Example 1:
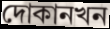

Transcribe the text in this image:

দোকানখন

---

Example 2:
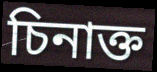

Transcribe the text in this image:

চিনাক্ত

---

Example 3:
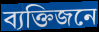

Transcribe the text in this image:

ব্যক্তিজনে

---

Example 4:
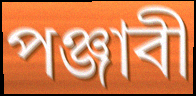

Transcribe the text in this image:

পঞ্জাবী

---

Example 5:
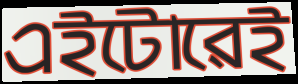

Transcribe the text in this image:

এইটোৱেই